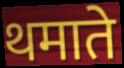
थमाते